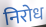
निरोध